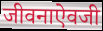
जीवनाऐवजी